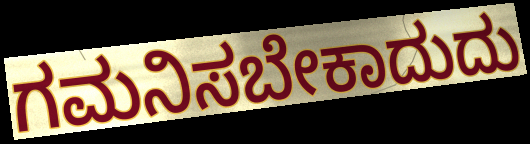
ಗಮನಿಸಬೇಕಾದುದು